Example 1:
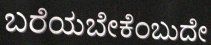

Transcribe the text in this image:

ಬರೆಯಬೇಕೆಂಬುದೇ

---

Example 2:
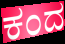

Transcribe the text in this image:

ಕಂದ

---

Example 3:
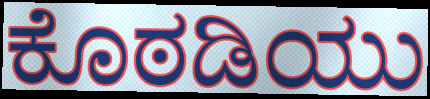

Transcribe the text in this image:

ಕೊಠಡಿಯು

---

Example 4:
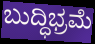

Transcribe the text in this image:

ಬುದ್ಧಿಭ್ರಮೆ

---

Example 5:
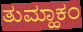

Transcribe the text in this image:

ತುಮ್ಹಾಕಂ